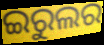
ଇରୁଲର